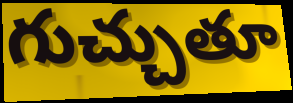
గుచ్చుతూ